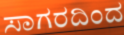
ಸಾಗರದಿಂದ